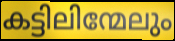
കട്ടിലിന്മേലും